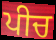
ਪੀਚ